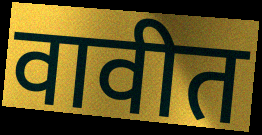
वावीत